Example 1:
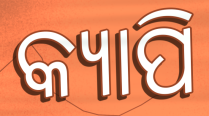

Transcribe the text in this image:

କ୍ୟାପି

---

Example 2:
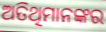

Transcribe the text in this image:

ଅତିଥିମାନଙ୍କର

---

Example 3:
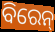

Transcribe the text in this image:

ବିରେନ୍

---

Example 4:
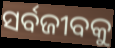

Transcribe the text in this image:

ସର୍ବଜୀବକୁ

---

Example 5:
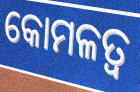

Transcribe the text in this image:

କୋମଳତ୍ୱ